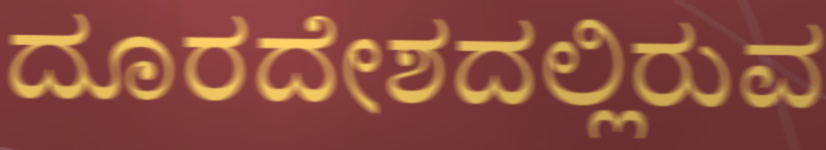
ದೂರದೇಶದಲ್ಲಿರುವ